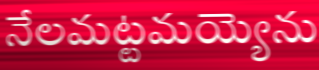
నేలమట్టమయ్యెను